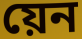
য়েন